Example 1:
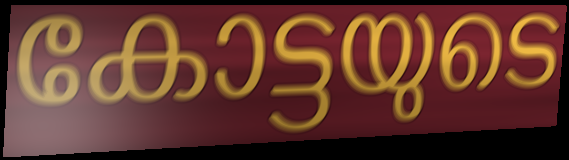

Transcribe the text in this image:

കോട്ടയുടെ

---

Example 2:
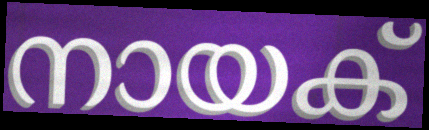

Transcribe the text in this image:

നായക്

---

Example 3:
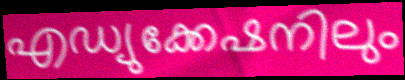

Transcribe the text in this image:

എഡ്യുക്കേഷനിലും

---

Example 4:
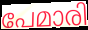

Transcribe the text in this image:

പേമാരി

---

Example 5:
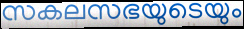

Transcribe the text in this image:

സകലസഭയുടെയും